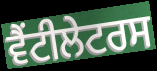
ਵੈਂਟੀਲੇਟਰਸ